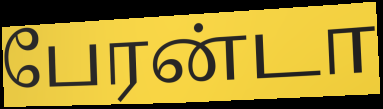
பேரன்டா